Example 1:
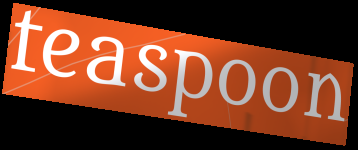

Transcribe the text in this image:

teaspoon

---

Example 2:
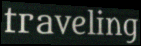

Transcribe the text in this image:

traveling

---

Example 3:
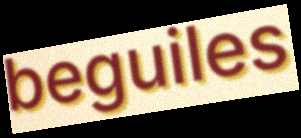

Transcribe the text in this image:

beguiles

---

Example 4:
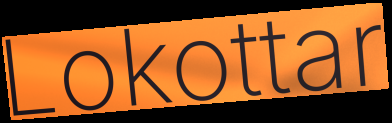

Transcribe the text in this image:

Lokottar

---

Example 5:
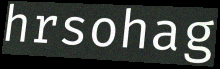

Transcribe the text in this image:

hrsohag